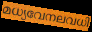
മധ്യവേനലവധി